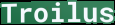
Troilus